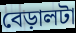
বেড়ালটা